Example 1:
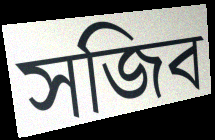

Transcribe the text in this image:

সজিব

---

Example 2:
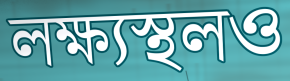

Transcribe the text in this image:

লক্ষ্যস্থলও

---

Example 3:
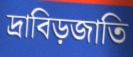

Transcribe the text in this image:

দ্রাবিড়জাতি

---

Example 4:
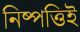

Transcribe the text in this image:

নিষ্পত্তিই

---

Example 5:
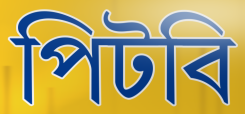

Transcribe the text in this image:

পিটবি